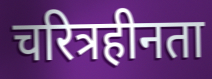
चरित्रहीनता